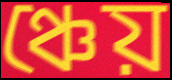
ঞ্চেয়